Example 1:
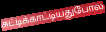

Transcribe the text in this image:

சுட்டிக்காட்டியதுபோல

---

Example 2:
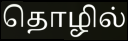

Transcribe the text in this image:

தொழில்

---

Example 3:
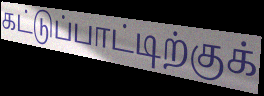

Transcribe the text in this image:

கட்டுப்பாட்டிற்குக்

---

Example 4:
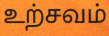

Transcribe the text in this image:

உற்சவம்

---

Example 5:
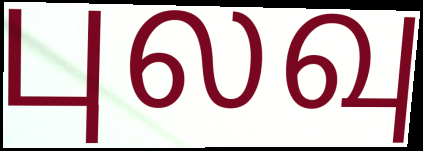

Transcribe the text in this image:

புலவு